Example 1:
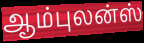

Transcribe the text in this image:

ஆம்புலன்ஸ்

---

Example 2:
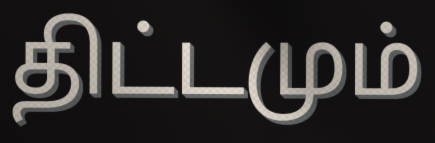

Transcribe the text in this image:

திட்டமும்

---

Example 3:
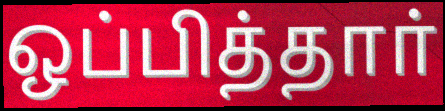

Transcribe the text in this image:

ஒப்பித்தார்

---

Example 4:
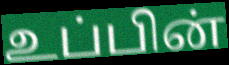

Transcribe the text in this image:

உப்பின்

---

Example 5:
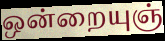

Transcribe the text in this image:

ஒன்றையுஞ்